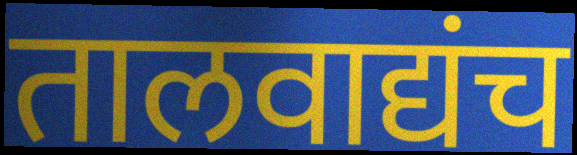
तालवाद्यंच